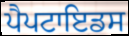
ਪੈਪਟਾਇਡਸ